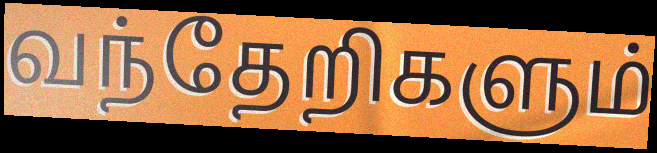
வந்தேறிகளும்